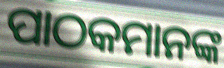
ପାଠକମାନଙ୍କ